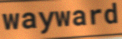
wayward